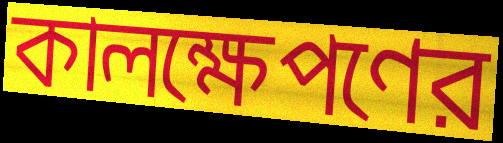
কালক্ষেপণের